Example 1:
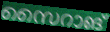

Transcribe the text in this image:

സൈറാങ്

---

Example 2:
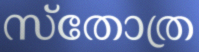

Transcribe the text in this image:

സ്തോത്ര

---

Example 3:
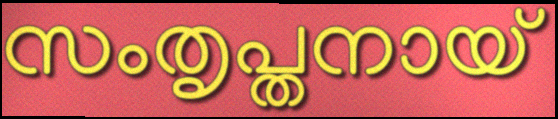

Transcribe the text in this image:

സംതൃപ്തനായ്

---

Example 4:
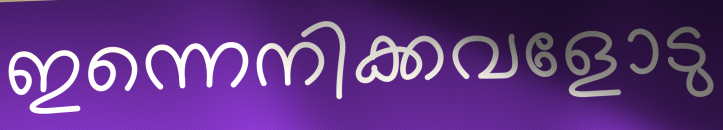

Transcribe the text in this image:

ഇന്നെനിക്കവളോടു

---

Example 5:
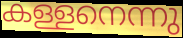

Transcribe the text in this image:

കള്ളനെന്നു